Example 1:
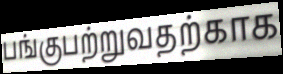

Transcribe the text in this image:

பங்குபற்றுவதற்காக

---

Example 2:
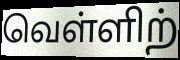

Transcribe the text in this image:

வெள்ளிற்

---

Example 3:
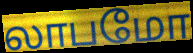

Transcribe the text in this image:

லாபமோ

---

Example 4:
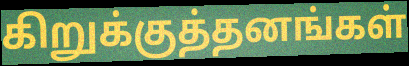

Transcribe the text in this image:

கிறுக்குத்தனங்கள்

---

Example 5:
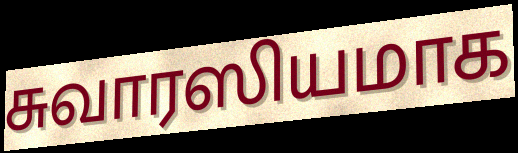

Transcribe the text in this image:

சுவாரஸியமாக